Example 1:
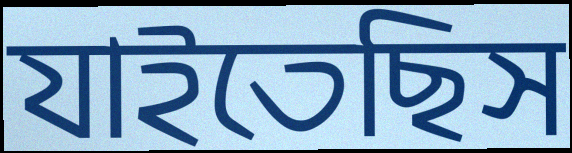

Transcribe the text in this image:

যাইতেছিস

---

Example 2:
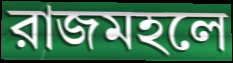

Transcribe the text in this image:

রাজমহলে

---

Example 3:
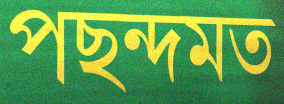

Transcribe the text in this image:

পছন্দমত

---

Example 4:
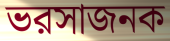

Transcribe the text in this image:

ভরসাজনক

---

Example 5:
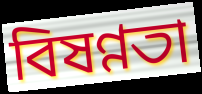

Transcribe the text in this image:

বিষণ্নতা